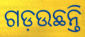
ଗଡ଼ଉଛନ୍ତି